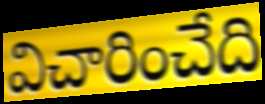
విచారించేది